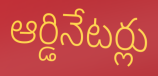
ఆర్డినేటర్లు